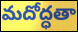
మదోద్ధతా